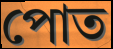
পোত